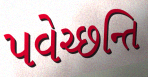
પવેચ્છન્તિ